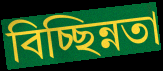
বিচ্ছিন্নতা